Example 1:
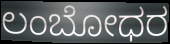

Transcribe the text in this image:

ಲಂಬೋಧರ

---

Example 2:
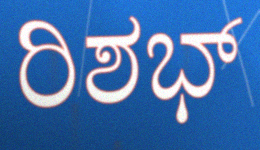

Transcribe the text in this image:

ರಿಶಭ್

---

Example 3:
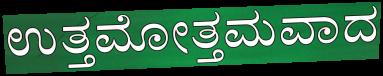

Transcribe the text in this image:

ಉತ್ತಮೋತ್ತಮವಾದ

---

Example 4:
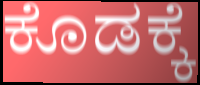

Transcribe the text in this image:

ಕೊಡಕ್ಕೆ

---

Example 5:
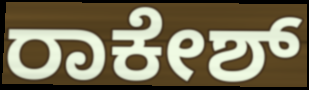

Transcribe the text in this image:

ರಾಕೇಶ್